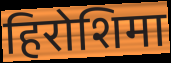
हिरोशिमा